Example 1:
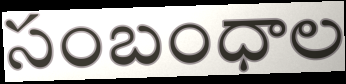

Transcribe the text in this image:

సంబంధాల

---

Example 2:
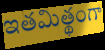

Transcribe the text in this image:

ఇతమిత్థంగా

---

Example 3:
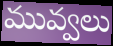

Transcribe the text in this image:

మువ్వలు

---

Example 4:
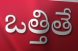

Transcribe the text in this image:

ఒత్తితే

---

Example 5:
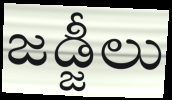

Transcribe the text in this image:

జడ్జీలు